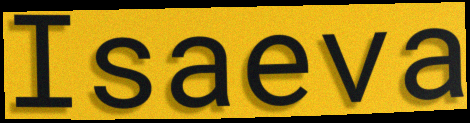
Isaeva